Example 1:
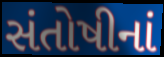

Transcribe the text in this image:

સંતોષીનાં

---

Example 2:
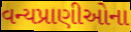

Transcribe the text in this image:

વન્યપ્રાણીઓના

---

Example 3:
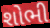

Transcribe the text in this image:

શોભી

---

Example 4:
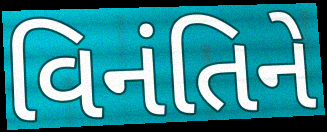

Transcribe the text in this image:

વિનંતિને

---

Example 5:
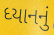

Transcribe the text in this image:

ધ્યાનનું